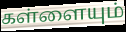
கள்ளையும்